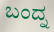
ಬಂದ್ನ